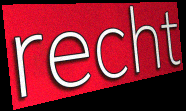
recht